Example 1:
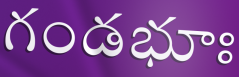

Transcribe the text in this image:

గండభూః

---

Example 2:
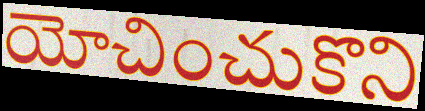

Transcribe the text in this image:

యోచించుకొని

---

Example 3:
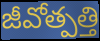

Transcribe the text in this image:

జీవోత్పత్తి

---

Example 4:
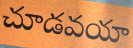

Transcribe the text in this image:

చూడవయా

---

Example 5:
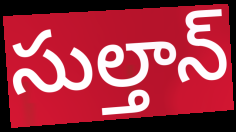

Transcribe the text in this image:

సుల్తాన్